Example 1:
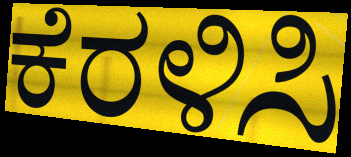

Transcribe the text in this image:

ಕೆರಳಿಸಿ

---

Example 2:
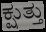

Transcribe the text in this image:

ಕ್ಷುತ್ತು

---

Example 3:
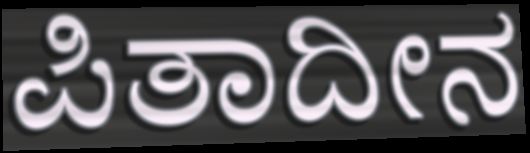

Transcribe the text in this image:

ಪಿತಾದೀನ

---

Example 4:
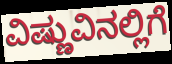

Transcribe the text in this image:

ವಿಷ್ಣುವಿನಲ್ಲಿಗೆ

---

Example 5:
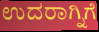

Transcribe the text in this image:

ಉದರಾಗ್ನಿಗೆ